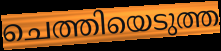
ചെത്തിയെടുത്ത